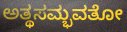
ಅತ್ಥಸಮ್ಭವತೋ